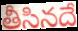
తీసినదే